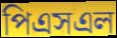
পিএসএল